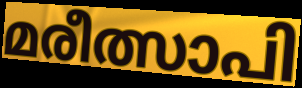
മരീത്സാപി